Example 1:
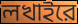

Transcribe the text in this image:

লখাইরে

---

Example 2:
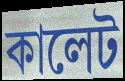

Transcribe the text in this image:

কালেট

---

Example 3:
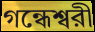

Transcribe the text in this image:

গন্ধেশ্বরী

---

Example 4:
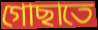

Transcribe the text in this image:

গোছাতে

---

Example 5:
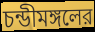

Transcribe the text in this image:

চন্ডীমঙ্গলের